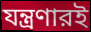
যন্ত্রণারই